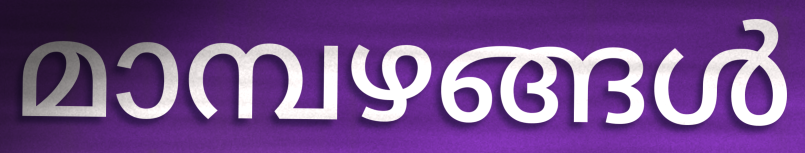
മാമ്പഴങ്ങൾ